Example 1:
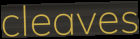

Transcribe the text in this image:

cleaves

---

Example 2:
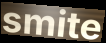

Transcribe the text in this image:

smite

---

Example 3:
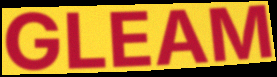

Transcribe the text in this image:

GLEAM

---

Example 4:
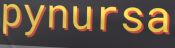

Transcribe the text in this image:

pynursa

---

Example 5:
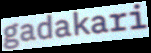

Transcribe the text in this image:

gadakari